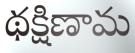
థక్షిణామ